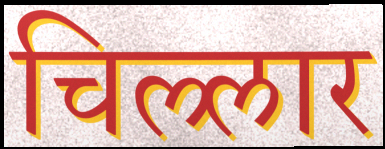
चिल्लार